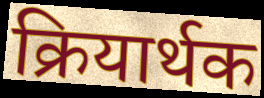
क्रियार्थक